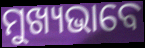
ମୁଖ୍ୟଭାବେ